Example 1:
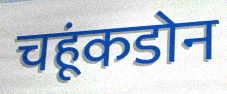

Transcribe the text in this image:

चहूंकडोन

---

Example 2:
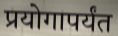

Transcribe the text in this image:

प्रयोगापर्यंत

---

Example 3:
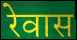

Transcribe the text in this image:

रेवास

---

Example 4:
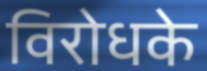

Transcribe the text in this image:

विरोधके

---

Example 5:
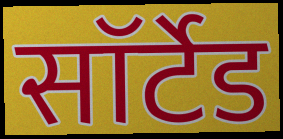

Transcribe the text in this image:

सॉर्टेड